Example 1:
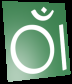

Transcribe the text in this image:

ଠାଁ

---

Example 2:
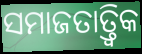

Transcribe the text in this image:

ସମାଜତାତ୍ତ୍ୱିକ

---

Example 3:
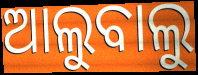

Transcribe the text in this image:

ଆଲୁବାଲୁ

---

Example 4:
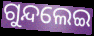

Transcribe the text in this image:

ଗୁନ୍ଦଲେଇ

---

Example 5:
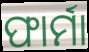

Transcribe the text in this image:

ଫାର୍ମା